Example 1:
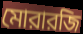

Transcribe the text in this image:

মোরারজি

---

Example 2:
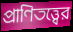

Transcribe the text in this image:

প্রাণিতত্ত্বের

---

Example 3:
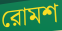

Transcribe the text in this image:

রোমশ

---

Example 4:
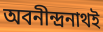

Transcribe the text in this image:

অবনীন্দ্রনাথই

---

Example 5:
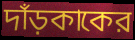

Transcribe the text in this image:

দাঁড়কাকের